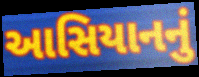
આસિયાનનું